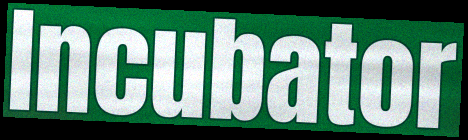
Incubator